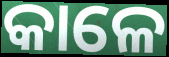
କାଳେ